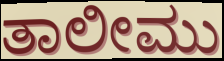
ತಾಲೀಮು